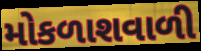
મોકળાશવાળી